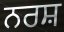
ਨਰਸ਼